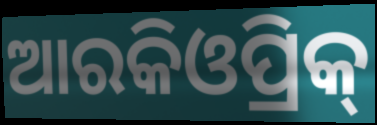
ଆରକିଓପ୍ରିକ୍